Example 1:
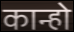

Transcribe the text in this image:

कान्हो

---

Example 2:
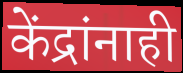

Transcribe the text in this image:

केंद्रांनाही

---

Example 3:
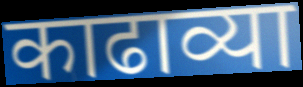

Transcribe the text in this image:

काढाव्या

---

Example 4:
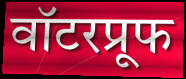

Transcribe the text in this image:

वॉटरप्रूफ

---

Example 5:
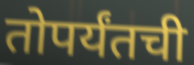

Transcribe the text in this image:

तोपर्यंतची